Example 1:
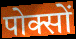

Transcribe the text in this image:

पोक्सों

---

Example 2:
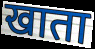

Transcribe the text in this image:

खाता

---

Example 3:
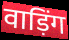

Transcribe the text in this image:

वाड़िंग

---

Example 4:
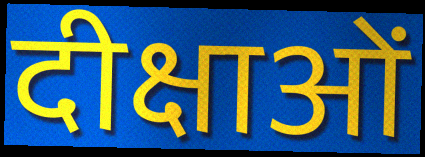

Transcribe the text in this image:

दीक्षाओं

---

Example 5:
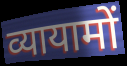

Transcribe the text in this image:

व्यायामों